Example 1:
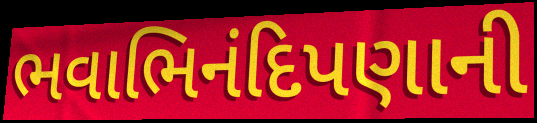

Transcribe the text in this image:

ભવાભિનંદિપણાની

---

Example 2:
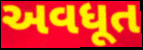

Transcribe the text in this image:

અવધૂત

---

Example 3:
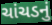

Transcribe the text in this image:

ચાંચડનું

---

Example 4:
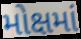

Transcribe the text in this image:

મોક્ષમાં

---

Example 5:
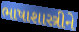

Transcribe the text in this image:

ભાષાશાસ્ત્રીને